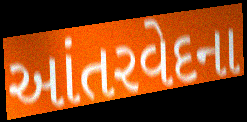
આંતરવેદના